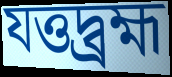
যত্তদ্ব্রহ্ম